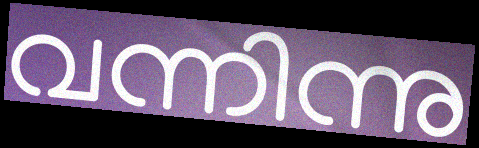
വന്നിന്നു